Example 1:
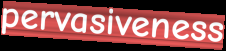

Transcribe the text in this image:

pervasiveness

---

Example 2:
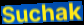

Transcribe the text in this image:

Suchak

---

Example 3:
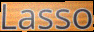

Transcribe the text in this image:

Lasso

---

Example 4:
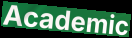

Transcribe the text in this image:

Academic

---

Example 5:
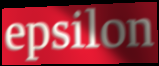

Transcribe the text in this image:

epsilon